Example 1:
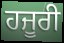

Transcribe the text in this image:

ਹਜੂਰੀ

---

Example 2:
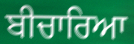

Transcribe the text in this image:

ਬੀਚਾਰਿਆ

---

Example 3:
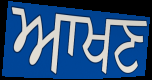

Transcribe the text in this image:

ਆਖਣ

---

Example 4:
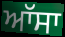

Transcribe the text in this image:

ਆੱਸਾ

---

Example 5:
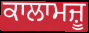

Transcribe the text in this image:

ਕਾਲਾਮਜ਼ੂ